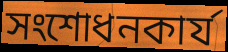
সংশোধনকার্য